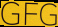
GFG